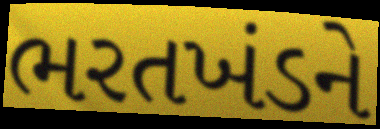
ભરતખંડને